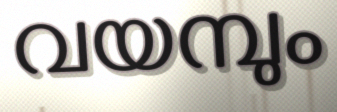
വയമ്പും